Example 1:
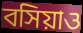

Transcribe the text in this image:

বসিয়াও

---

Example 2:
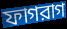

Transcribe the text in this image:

ফাগরাগ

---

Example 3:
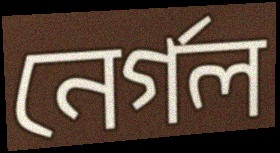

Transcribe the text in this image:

নের্গল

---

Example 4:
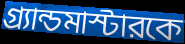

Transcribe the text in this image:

গ্র্যান্ডমাস্টারকে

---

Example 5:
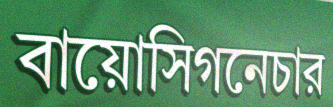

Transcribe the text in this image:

বায়োসিগনেচার